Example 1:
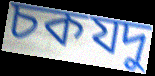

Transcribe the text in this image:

চকযদু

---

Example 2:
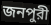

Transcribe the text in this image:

জনপুরী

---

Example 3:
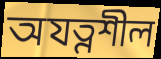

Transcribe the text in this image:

অযত্নশীল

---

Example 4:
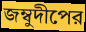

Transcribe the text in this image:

জম্বুদীপের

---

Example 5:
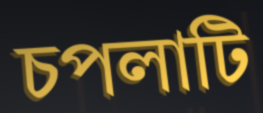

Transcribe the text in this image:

চপলাটি